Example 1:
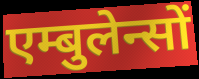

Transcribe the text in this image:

एम्बुलेन्सों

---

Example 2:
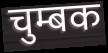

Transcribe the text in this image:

चुम्बक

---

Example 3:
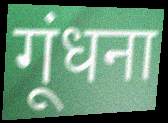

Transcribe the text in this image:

गूंधना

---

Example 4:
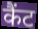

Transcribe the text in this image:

कैंट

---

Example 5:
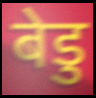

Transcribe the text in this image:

बेडु